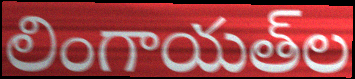
లింగాయత్‌ల